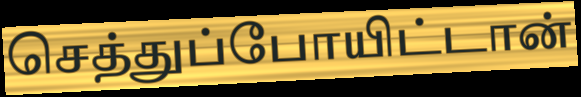
செத்துப்போயிட்டான்